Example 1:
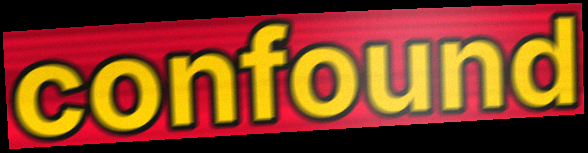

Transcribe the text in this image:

confound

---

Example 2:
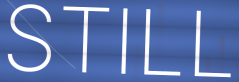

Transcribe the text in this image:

STILL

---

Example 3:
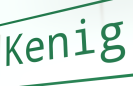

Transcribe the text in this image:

Kenig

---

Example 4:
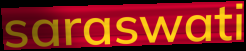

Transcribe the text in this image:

saraswati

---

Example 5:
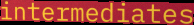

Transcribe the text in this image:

intermediates